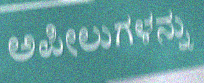
ಅಪೀಲುಗಳನ್ನು